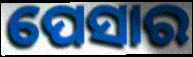
ପେସାର